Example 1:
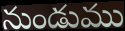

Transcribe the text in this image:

నుండుము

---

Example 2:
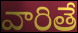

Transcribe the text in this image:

వారితే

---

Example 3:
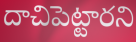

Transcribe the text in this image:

దాచిపెట్టారని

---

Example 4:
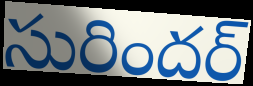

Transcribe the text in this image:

సురిందర్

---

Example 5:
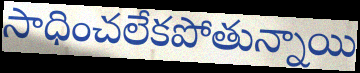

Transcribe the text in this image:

సాధించలేకపోతున్నాయి